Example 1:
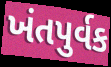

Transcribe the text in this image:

ખંતપુર્વક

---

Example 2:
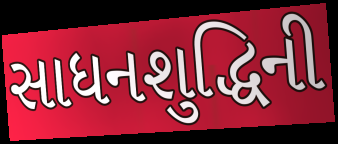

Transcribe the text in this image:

સાધનશુદ્ધિની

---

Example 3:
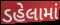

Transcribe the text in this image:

ડહેલામાં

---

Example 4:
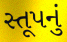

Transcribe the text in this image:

સ્તૂપનું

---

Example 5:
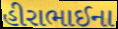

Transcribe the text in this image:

હીરાભાઈના